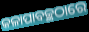
କଳାପାବଚ୍ଛଠାରେ